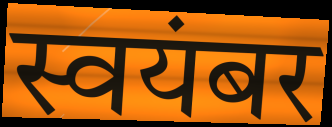
स्वयंबर